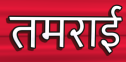
तमराई